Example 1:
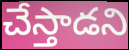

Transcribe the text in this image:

చేస్తాడని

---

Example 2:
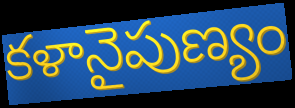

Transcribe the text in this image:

కళానైపుణ్యం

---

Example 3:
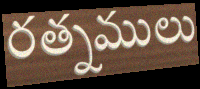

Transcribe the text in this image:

రత్నములు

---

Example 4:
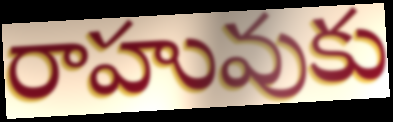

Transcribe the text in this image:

రాహువుకు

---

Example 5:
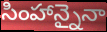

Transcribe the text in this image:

సింహాన్నైనా